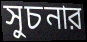
সুচনার